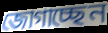
জোগাচ্ছেন